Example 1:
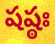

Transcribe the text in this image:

షష్ఠః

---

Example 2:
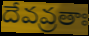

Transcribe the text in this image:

దేవవ్రతాః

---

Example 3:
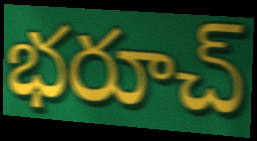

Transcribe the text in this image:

భరూచ్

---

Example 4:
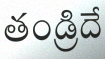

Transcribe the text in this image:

తండ్రిదే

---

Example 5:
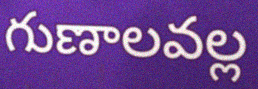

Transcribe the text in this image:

గుణాలవల్ల